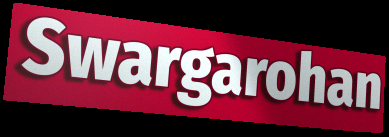
Swargarohan